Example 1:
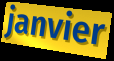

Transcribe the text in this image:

janvier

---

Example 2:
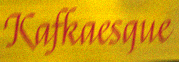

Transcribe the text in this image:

Kafkaesque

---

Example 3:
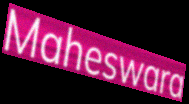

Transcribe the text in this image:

Maheswara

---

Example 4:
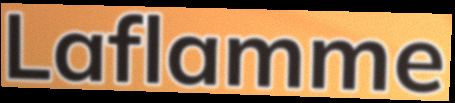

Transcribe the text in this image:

Laflamme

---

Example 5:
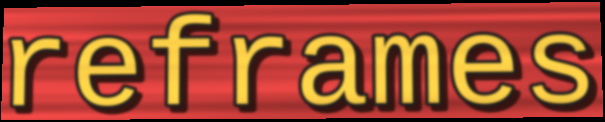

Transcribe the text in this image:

reframes